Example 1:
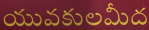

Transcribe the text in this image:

యువకులమీద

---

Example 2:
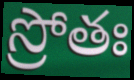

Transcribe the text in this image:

స్రోతః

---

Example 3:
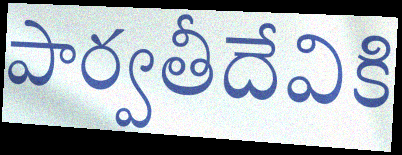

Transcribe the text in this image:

పార్వతీదేవికి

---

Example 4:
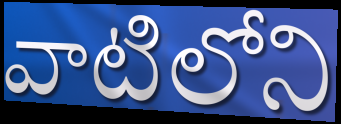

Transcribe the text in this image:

వాటిలోని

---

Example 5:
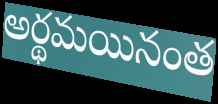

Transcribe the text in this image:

అర్థమయినంత